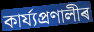
কাৰ্য্যপ্ৰণালীৰ